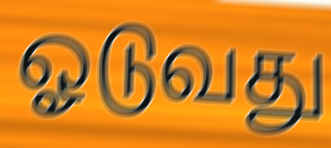
ஓடுவது